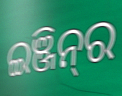
ଇଞ୍ଜିନ୍‍ର